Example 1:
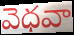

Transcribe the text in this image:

వెధవా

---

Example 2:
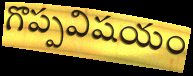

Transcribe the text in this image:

గొప్పవిషయం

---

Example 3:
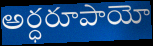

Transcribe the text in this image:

అర్ధరూపాయో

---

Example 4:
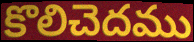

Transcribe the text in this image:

కొలిచెదము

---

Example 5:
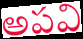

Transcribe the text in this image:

అపవి